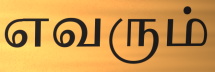
எவரும்